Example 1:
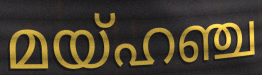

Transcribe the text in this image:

മയ്ഹഞ്ച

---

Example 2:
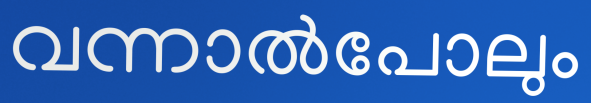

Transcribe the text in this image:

വന്നാൽപോലും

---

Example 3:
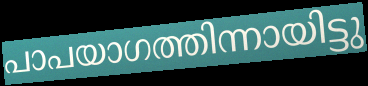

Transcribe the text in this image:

പാപയാഗത്തിന്നായിട്ടു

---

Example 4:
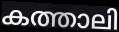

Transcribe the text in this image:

കത്താലി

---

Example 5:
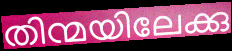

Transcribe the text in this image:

തിന്മയിലേക്കു